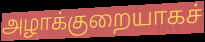
அழாக்குறையாகச்